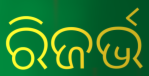
ରିଜର୍ଭ